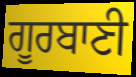
ਗੂਰਬਾਣੀ